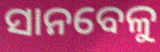
ସାନବେଳୁ